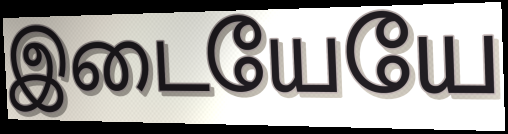
இடையேயே